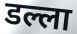
डल्ला